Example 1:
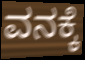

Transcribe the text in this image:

ವನಕ್ಕೆ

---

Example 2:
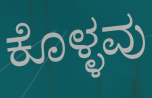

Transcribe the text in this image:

ಕೊಳ್ಳವು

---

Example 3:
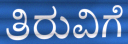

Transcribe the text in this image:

ತಿರುವಿಗೆ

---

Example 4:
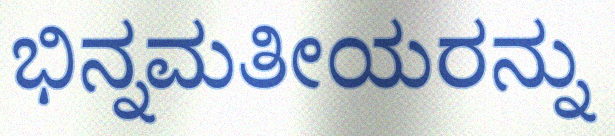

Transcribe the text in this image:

ಭಿನ್ನಮತೀಯರನ್ನು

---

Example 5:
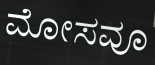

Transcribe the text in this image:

ಮೋಸವೂ